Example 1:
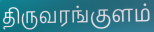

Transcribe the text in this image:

திருவரங்குளம்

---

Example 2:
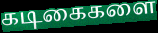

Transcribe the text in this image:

கடிகைகளை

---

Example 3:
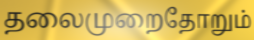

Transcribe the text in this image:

தலைமுறைதோறும்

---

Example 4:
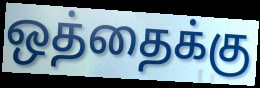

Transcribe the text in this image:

ஒத்தைக்கு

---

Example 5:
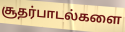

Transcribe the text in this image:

சூதர்பாடல்களை